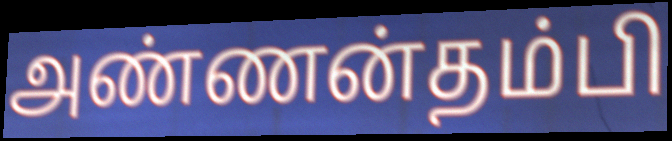
அண்ணன்தம்பி